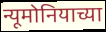
न्यूमोनियाच्या